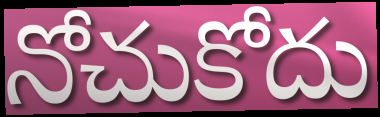
నోచుకోదు